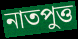
নাতপুত্ত